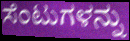
ಸೆಂಟುಗಳನ್ನು